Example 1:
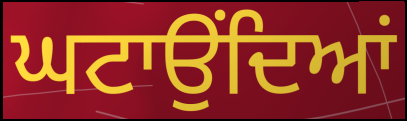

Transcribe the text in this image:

ਘਟਾਉਂਦਿਆਂ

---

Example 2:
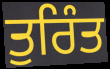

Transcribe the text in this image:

ਤੁਰਿੰਤ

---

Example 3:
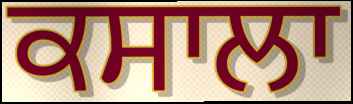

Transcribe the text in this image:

ਕਸਾਲਾ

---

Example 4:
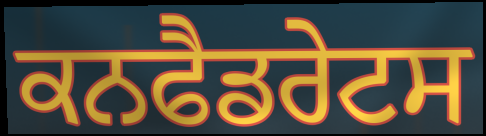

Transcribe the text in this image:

ਕਨਫੈਡਰੇਟਸ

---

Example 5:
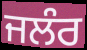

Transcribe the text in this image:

ਜਲੰਰ